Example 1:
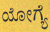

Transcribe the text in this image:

ಯೋಗ್ಯೆ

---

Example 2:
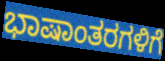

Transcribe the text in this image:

ಭಾಷಾಂತರಗಳಿಗೆ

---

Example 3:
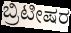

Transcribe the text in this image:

ಬ್ರಿಟೀಷರ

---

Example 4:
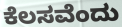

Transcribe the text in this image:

ಕೆಲಸವೆಂದು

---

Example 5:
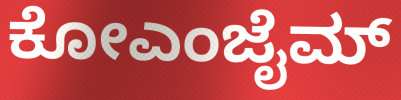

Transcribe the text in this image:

ಕೋಎಂಜೈಮ್